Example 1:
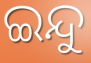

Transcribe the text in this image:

ଇନ୍ଦୁ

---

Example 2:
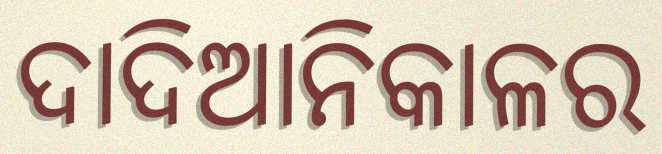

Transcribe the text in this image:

ଦାଦିଆନିକାଳର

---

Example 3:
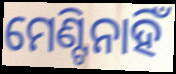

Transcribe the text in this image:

ମେଣ୍ଟିନାହିଁ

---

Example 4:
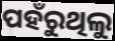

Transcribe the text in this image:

ପହଁରୁଥିଲୁ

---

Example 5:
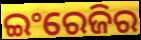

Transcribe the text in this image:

ଇଂରେଜିର